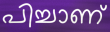
പിച്ചാണ്